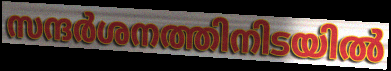
സന്ദർശനത്തിനിടയിൽ